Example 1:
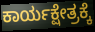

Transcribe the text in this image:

ಕಾರ್ಯಕ್ಷೇತ್ರಕ್ಕೆ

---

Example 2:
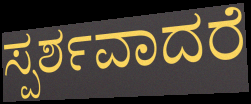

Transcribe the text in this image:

ಸ್ಪರ್ಶವಾದರೆ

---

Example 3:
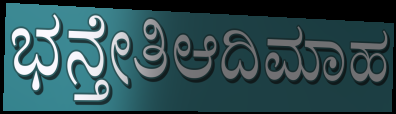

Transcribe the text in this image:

ಭನ್ತೇತಿಆದಿಮಾಹ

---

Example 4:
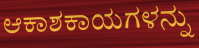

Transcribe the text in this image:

ಆಕಾಶಕಾಯಗಳನ್ನು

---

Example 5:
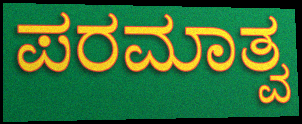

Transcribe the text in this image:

ಪರಮಾತ್ವ